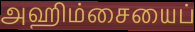
அஹிம்சையைப்